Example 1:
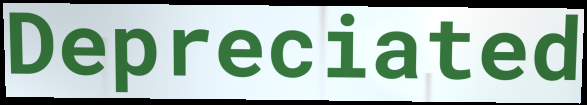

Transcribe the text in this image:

Depreciated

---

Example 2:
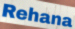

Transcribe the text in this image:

Rehana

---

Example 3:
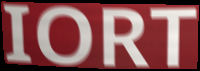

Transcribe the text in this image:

IORT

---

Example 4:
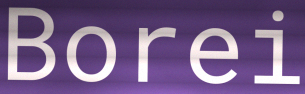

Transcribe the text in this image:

Borei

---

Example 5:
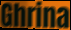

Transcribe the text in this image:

Ghrina